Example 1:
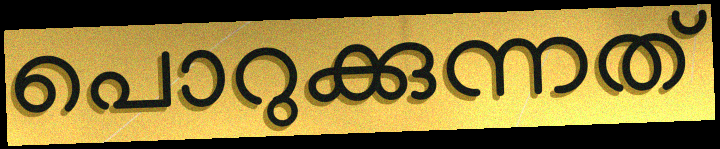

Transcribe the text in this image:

പൊറുക്കുന്നത്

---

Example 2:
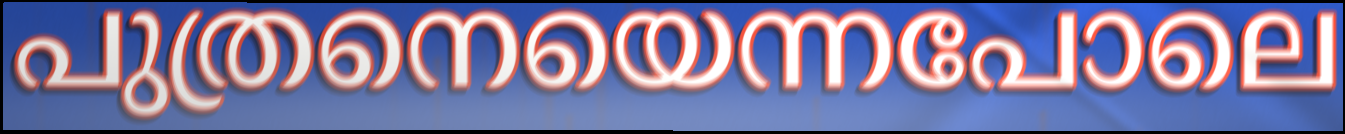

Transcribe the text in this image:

പുത്രനെയെന്നപോലെ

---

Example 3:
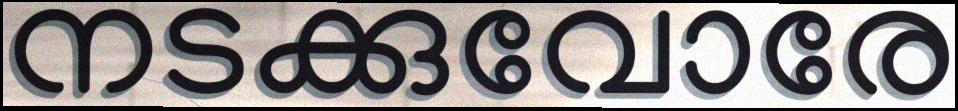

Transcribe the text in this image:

നടക്കുവോരേ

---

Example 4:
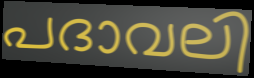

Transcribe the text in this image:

പദാവലി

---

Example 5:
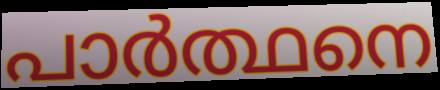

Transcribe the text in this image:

പാർത്ഥനെ